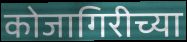
कोजागिरीच्या